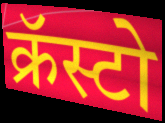
क्रॅस्टो